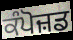
ਕੰਪੋਜ਼ਡ